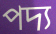
পদ্য